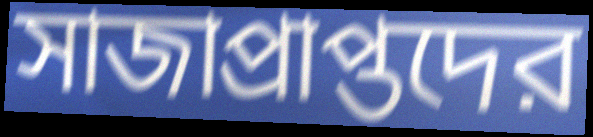
সাজাপ্রাপ্তদের